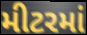
મીટરમાં